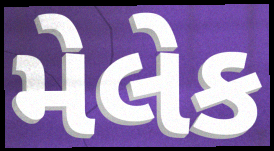
મેલેક